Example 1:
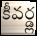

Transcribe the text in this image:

కీవర్డ్ల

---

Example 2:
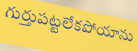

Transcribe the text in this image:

గుర్తుపట్టలేకపోయాను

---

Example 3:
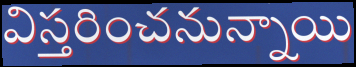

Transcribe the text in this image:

విస్తరించనున్నాయి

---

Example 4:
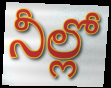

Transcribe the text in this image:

నీల్లో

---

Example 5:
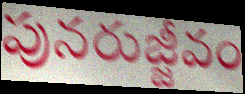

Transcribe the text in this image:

పునరుజ్జీవం